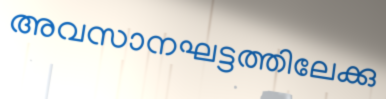
അവസാനഘട്ടത്തിലേക്കു